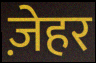
ज़ेहर